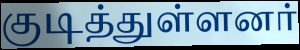
குடித்துள்ளனர்